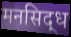
मनसिद्ध